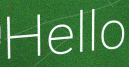
Hello